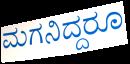
ಮಗನಿದ್ದರೂ